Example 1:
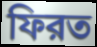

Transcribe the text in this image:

ফিরত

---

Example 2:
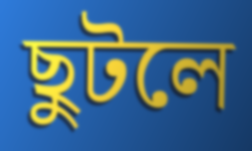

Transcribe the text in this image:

ছুটলে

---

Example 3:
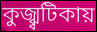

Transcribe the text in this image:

কুজ্ঝ্বটিকায়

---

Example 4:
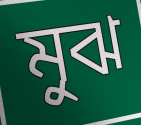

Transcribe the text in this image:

মুঝ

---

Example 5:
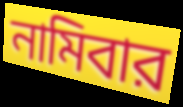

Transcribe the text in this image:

নামিবার